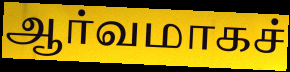
ஆர்வமாகச்